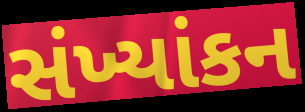
સંખ્યાંકન